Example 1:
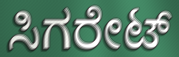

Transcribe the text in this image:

ಸಿಗರೇಟ್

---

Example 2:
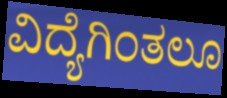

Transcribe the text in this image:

ವಿದ್ಯೆಗಿಂತಲೂ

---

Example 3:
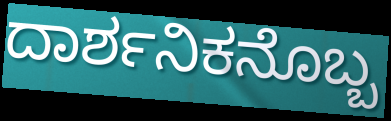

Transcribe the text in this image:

ದಾರ್ಶನಿಕನೊಬ್ಬ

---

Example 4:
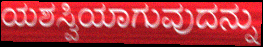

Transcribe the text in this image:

ಯಶಸ್ವಿಯಾಗುವುದನ್ನು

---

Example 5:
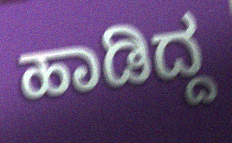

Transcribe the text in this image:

ಹಾಡಿದ್ದ